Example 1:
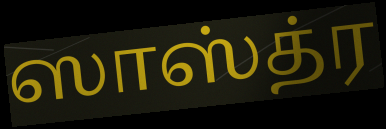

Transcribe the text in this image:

ஸாஸ்த்ர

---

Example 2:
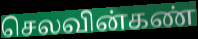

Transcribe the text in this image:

செலவின்கண்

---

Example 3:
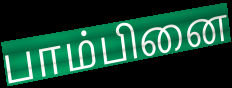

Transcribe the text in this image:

பாம்பினை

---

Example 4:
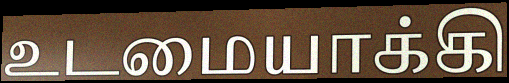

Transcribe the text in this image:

உடமையாக்கி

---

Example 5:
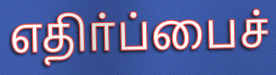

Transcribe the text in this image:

எதிர்ப்பைச்